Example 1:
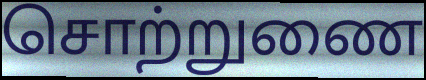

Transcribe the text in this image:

சொற்றுணை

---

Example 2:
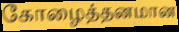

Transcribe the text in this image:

கோழைத்தனமான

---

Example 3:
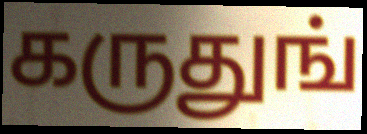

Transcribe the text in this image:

கருதுங்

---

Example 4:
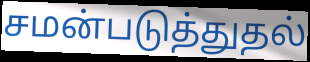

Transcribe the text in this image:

சமன்படுத்துதல்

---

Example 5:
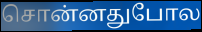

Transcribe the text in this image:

சொன்னதுபோல